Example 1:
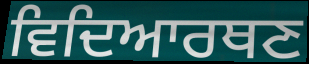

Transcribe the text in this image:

ਵਿਦਿਆਰਥਣ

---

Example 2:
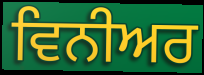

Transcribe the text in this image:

ਵਿਨੀਅਰ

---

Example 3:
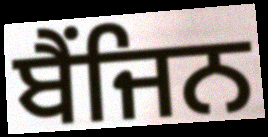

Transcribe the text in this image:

ਬੈਂਜਿਨ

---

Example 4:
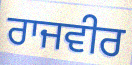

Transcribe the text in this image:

ਰਾਜਵੀਰ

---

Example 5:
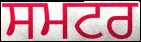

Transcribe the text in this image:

ਸਮਟਰ